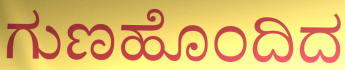
ಗುಣಹೊಂದಿದ